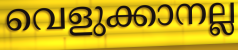
വെളുക്കാനല്ല